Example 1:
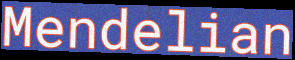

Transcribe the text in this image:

Mendelian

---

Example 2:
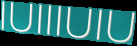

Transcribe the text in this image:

IUIIIUIU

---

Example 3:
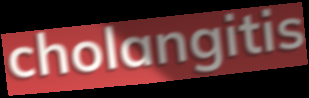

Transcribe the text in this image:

cholangitis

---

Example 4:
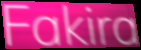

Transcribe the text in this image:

Fakira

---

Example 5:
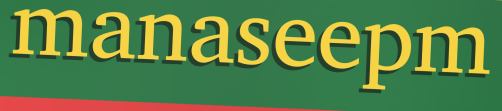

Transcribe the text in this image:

manaseepm